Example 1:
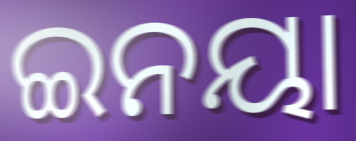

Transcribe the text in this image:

ଇନୟା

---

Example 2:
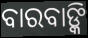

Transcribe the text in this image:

ବାରବାଙ୍କି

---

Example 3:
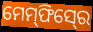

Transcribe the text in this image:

ମେମ୍‍ଫିସ୍‍ରେ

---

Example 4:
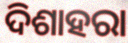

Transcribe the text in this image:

ଦିଶାହରା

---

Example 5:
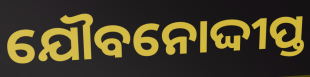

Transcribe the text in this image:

ଯୌବନୋଦ୍ଦୀପ୍ତ